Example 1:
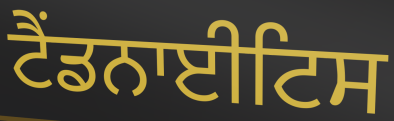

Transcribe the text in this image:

ਟੈਂਡਨਾਈਟਿਸ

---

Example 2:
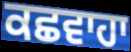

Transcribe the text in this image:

ਕਛਵਾਹਾ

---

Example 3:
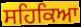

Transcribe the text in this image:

ਸਹਿਕਿਆ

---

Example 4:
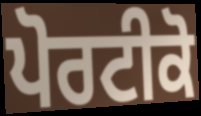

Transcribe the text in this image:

ਪੋਰਟੀਕੋ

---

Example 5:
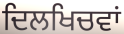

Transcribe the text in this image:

ਦਿਲਖਿਚਵਾਂ